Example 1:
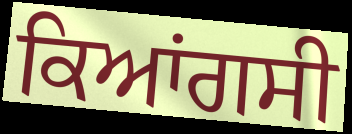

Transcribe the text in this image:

ਕਿਆਂਗਸੀ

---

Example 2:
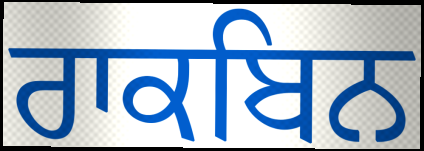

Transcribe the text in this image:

ਰਾਕਬਿਨ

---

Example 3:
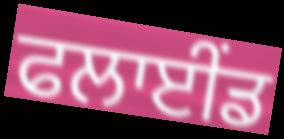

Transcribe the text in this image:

ਫਲਾਈਂਡ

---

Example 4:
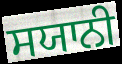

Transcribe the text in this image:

ਸਯਾਨੀ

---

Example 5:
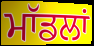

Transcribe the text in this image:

ਮਾੱਡਲਾਂ